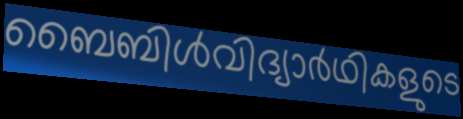
ബൈബിൾവിദ്യാർഥികളുടെ